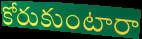
కోరుకుంటారా